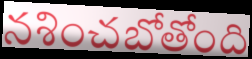
నశించబోతోంది